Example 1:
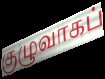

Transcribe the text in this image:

குழுவாகப்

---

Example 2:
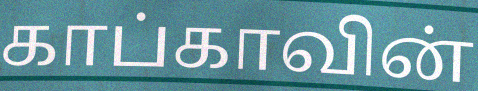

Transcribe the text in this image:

காப்காவின்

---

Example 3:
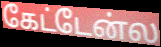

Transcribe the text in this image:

கேட்டேன்ல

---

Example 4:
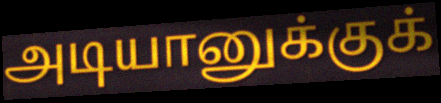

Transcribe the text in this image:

அடியானுக்குக்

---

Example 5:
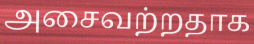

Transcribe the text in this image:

அசைவற்றதாக